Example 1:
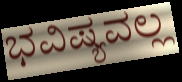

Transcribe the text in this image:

ಭವಿಷ್ಯವಲ್ಲ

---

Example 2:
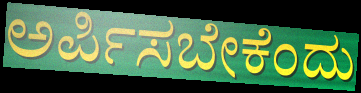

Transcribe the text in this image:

ಅರ್ಪಿಸಬೇಕೆಂದು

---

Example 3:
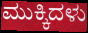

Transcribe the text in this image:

ಮುಕ್ಕಿದಳು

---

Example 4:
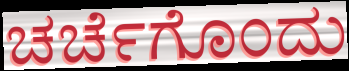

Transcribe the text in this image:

ಚರ್ಚೆಗೊಂದು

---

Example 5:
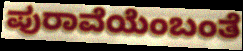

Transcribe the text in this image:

ಪುರಾವೆಯೆಂಬಂತೆ